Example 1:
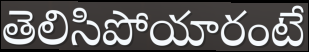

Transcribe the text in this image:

తెలిసిపోయారంటే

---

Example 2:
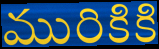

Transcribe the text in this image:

మురికికి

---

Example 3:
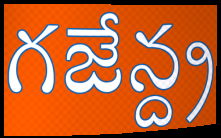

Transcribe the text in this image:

గజేన్ద్ర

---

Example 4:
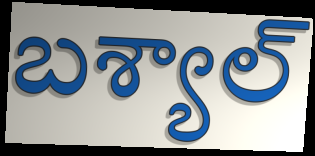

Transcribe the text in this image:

బశ్యాల్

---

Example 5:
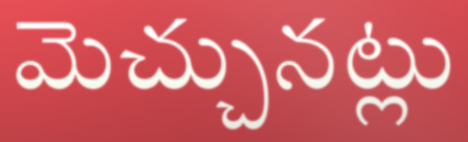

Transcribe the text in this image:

మెచ్చునట్లు